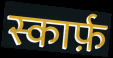
स्कार्फ़